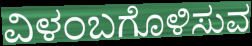
ವಿಳಂಬಗೊಳಿಸುವ